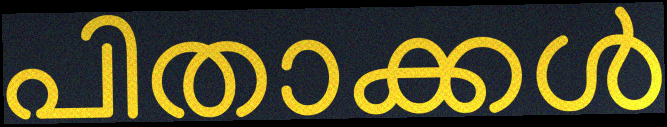
പിതാക്കൾ